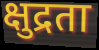
क्षुद्रता